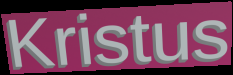
Kristus